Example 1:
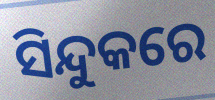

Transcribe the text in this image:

ସିନ୍ଦୁକରେ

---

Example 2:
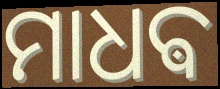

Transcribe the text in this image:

ମାଧଵ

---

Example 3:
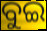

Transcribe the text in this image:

ବୁଇ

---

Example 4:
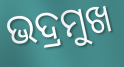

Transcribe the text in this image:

ଭଦ୍ରମୁଖ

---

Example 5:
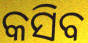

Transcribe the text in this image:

କସିବ